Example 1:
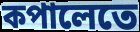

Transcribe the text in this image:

কপালেতে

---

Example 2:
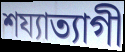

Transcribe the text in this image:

শয্যাত্যাগী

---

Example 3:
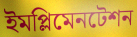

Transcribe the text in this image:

ইমপ্লিমেনটেশন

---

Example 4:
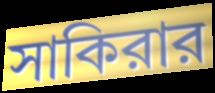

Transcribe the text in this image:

সাকিরার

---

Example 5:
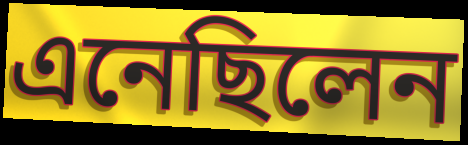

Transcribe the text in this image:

এনেছিলেন